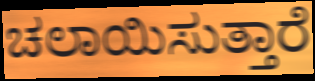
ಚಲಾಯಿಸುತ್ತಾರೆ